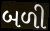
બળી